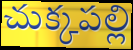
చుక్కపల్లి